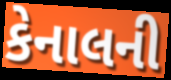
કેનાલની